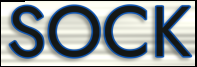
SOCK